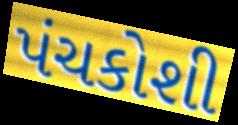
પંચકોશી